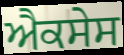
ਐਕਸੇਸ